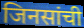
जिनसांची